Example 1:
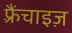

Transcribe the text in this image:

फ़्रैंचाइज़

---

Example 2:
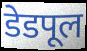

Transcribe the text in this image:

डेडपूल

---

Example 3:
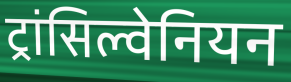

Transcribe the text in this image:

ट्रांसिल्वेनियन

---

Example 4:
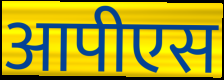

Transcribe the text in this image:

आपीएस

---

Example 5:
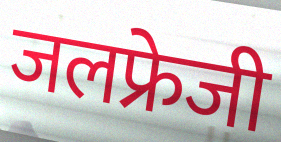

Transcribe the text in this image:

जलफ्रेजी